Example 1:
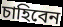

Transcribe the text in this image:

চাহিবেন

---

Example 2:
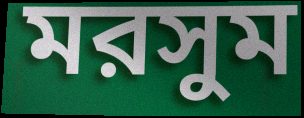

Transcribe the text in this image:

মরসুম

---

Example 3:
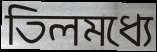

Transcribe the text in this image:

তিলমধ্যে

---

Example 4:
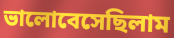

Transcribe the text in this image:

ভালোবেসেছিলাম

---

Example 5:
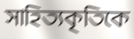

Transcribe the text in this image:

সাহিত্যকৃতিকে